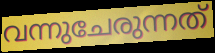
വന്നുചേരുന്നത്